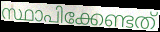
സ്ഥാപിക്കേണ്ടത്